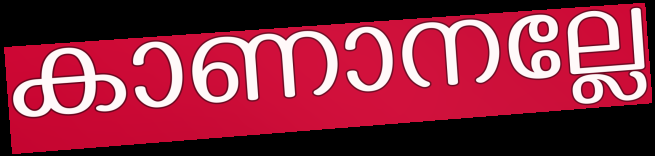
കാണാനല്ലേ